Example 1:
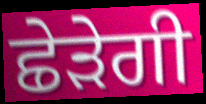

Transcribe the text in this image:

ਛੇੜੇਗੀ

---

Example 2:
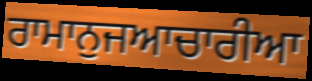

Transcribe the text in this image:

ਰਾਮਾਨੁਜਆਚਾਰੀਆ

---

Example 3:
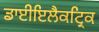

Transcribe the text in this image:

ਡਾਈਇਲੈਕਟ੍ਰਿਕ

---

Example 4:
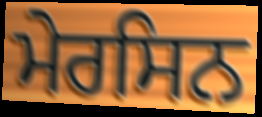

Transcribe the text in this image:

ਮੇਰਸਿਨ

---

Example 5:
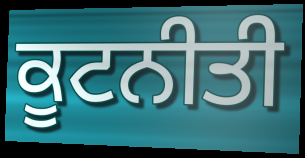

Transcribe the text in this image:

ਕੂਟਨੀਤੀ